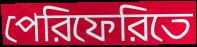
পেরিফেরিতে